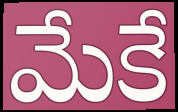
మేకే